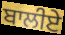
ਬਾਲੀਏ